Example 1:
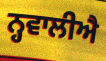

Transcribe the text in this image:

ਨ੍ਹਵਾਲੀਐ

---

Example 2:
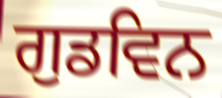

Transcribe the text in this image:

ਗੁਡਵਿਨ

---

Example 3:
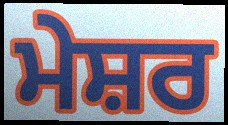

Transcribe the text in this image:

ਮੇਸ਼ਰ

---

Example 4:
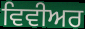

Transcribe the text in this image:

ਵਿਵੀਅਰ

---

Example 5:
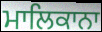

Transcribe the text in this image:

ਮਾਲਿਕਾਨਾ